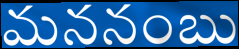
మననంబు